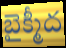
బైక్మీద